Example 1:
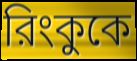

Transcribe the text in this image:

রিংকুকে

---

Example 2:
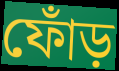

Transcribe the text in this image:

ফোঁড়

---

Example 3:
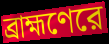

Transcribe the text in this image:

ব্রাহ্মণেরে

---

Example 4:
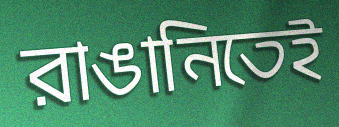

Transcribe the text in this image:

রাঙানিতেই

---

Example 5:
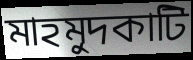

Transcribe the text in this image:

মাহমুদকাটি